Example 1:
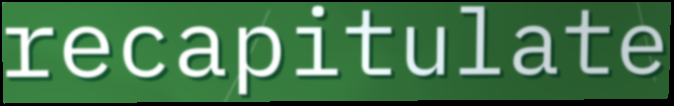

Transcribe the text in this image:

recapitulate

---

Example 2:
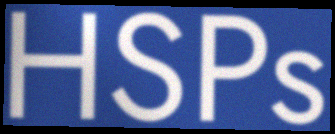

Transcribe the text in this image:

HSPs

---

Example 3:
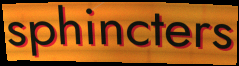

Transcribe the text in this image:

sphincters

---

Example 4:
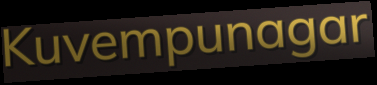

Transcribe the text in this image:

Kuvempunagar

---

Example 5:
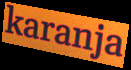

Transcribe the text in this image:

karanja